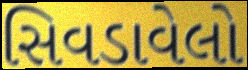
સિવડાવેલો